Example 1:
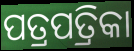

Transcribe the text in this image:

ପତ୍ରପତ୍ରିକା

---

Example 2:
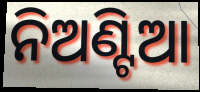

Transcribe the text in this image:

ନିଅଣ୍ଟିଆ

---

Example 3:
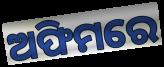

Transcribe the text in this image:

ଅଫିମରେ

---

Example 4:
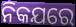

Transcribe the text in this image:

ନିକଯରେ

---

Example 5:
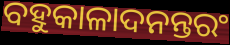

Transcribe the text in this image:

ବହୁକାଳାଦନନ୍ତରଂ